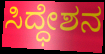
ಸಿದ್ಧೇಶನ